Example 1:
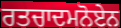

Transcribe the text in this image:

ਰਤਚਾਦਮਨੋਏਨ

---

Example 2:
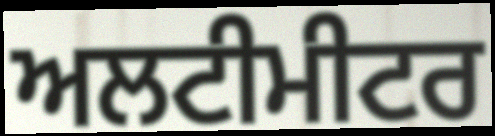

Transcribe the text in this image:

ਅਲਟੀਮੀਟਰ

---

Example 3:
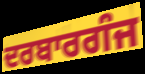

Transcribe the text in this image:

ਦਰਬਾਰਗੰਜ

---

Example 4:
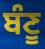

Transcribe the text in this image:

ਬੰਣੂ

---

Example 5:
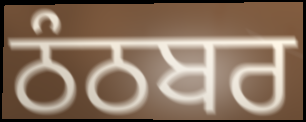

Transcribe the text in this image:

ਠੰਠਬਰ